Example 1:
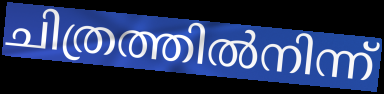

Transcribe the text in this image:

ചിത്രത്തിൽനിന്ന്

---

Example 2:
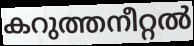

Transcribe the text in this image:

കറുത്തനീറ്റൽ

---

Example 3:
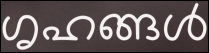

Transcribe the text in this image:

ഗൃഹങ്ങൾ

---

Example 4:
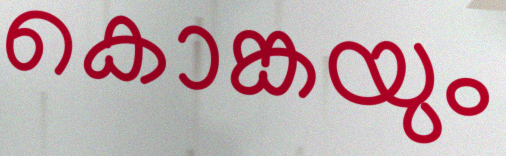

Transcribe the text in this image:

കൊങ്കയും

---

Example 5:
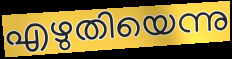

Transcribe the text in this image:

എഴുതിയെന്നു